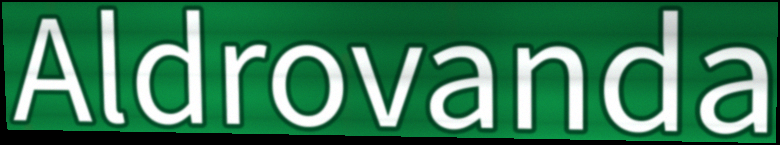
Aldrovanda